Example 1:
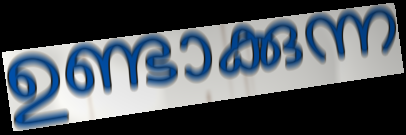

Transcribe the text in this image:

ഉണ്ടാക്കുന്ന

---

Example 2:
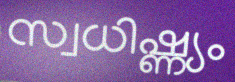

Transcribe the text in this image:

സ്വധിഷ്ണ്യം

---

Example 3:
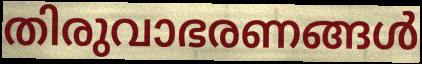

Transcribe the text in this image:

തിരുവാഭരണങ്ങൾ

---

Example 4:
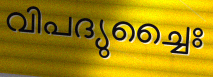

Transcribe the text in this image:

വിപദ്യുച്ചൈഃ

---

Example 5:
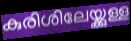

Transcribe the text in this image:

കുരിശിലേയ്ക്കുള്ള